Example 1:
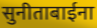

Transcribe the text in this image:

सुनीताबाईना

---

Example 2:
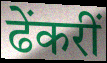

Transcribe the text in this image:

ढेंकरीं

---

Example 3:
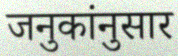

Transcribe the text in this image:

जनुकांनुसार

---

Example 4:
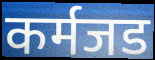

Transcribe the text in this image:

कर्मजड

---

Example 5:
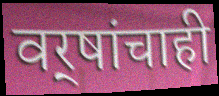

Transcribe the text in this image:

वर्षांचाही